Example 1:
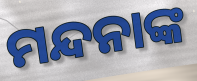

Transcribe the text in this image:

ମନ୍ଦନାଙ୍କ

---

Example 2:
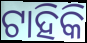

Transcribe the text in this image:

ଟାହିକି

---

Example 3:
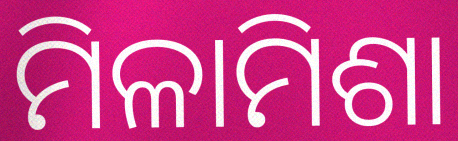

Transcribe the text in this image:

ମିଳାମିଶା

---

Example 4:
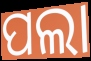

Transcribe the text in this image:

ପଲା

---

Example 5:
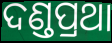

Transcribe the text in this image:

ଦଣ୍ଡପ୍ରଥା